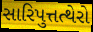
સારિપુત્તત્થેરો